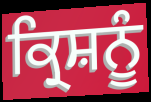
ਕ੍ਰਿਸ਼ਨੂੰ